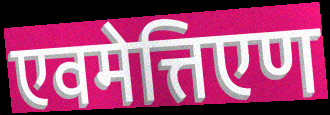
एवमेत्तिएण